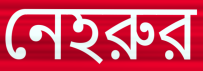
নেহরুর